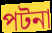
পটনা